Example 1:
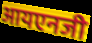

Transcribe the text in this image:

आयएनजी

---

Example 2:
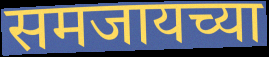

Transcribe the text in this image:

समजायच्या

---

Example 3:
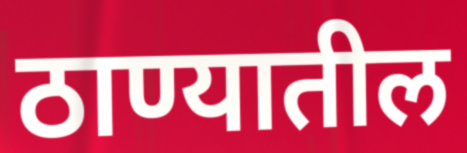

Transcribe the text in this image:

ठाण्यातील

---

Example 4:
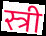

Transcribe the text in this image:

स्त्री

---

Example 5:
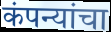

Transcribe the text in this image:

कंपन्यांचा